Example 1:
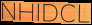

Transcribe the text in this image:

NHIDCL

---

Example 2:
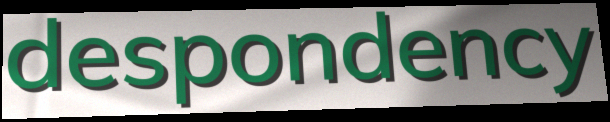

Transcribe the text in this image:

despondency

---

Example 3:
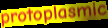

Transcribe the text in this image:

protoplasmic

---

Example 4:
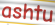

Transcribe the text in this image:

ashtu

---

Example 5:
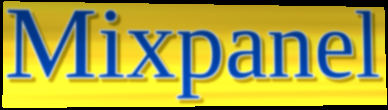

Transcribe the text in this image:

Mixpanel